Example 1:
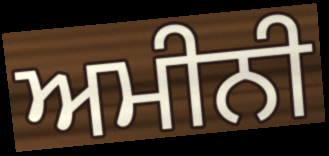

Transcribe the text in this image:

ਅਮੀਨੀ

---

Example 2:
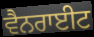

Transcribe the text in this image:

ਵੈਨਰਾਈਟ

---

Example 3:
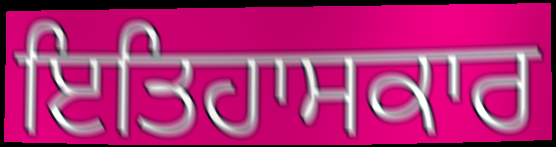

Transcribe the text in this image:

ਇਤਿਹਾਸਕਾਰ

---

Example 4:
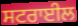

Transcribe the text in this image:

ਸਟਰਾਈਲ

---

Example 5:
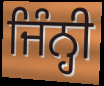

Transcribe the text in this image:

ਜਿੰਨ੍ਹੀ